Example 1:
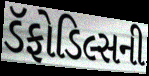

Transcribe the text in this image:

ડૅફોડિલ્સની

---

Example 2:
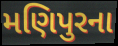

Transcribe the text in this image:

મણિપુરના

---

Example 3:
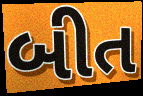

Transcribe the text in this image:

બીત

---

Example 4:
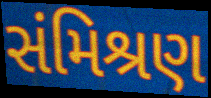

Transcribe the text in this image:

સંમિશ્રણ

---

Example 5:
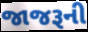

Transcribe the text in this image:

જાજરૂની